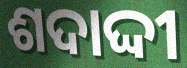
ଶଦାଦ୍ଦୀ